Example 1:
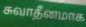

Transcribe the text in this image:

சுவாதீனமாக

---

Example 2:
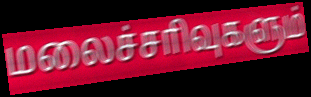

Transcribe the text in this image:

மலைச்சரிவுகளும்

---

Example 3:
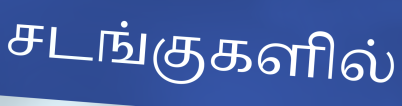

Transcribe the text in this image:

சடங்குகளில்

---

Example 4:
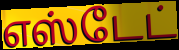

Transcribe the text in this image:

எஸ்டேட்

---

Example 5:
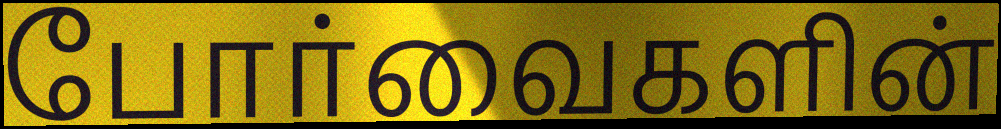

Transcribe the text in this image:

போர்வைகளின்